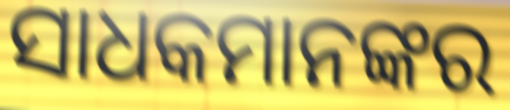
ସାଧକମାନଙ୍କର